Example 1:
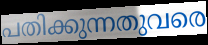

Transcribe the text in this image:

പതിക്കുന്നതുവരെ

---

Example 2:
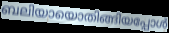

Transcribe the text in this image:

ബലിയായൊതിങ്ങിയപ്പോൾ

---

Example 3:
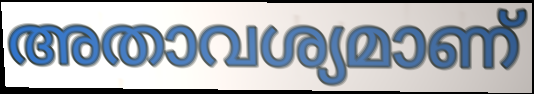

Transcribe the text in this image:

അതാവശ്യമാണ്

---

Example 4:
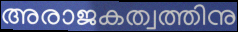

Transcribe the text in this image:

അരാജകത്വത്തിനു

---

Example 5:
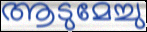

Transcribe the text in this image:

ആടുമേച്ചു